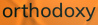
orthodoxy